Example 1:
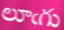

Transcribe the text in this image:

లూఁగు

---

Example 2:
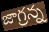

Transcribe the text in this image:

జాగ్రన్న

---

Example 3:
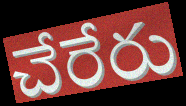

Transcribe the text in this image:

చేరేరు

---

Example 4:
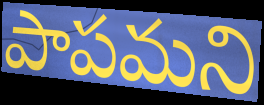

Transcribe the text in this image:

పాపమని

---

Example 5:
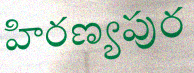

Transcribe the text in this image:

హిరణ్యపుర